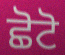
ਛੋਟੋ